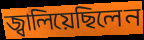
জ্বালিয়েছিলেন